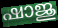
ഷാജു